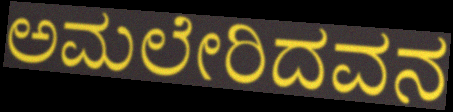
ಅಮಲೇರಿದವನ